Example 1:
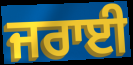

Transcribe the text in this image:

ਜਰਾਈ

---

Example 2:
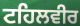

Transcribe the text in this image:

ਟਹਿਲਵੀਰ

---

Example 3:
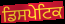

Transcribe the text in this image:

ਡਿਸਪੇਟਿਕ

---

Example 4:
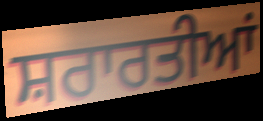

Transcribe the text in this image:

ਸ਼ਰਾਰਤੀਆਂ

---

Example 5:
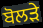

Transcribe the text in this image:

ਬੋਲੜੇ